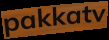
pakkatv